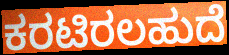
ಕರಟಿರಲಹುದೆ